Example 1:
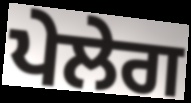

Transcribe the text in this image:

ਪੇਲੇਗ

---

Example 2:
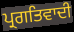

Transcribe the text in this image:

ਪ੍ਰਗਤਿਵਾਦੀ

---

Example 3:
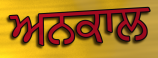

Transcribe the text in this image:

ਅਨਕਾਲ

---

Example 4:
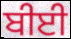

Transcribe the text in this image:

ਬੀਈ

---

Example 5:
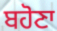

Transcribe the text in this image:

ਬਹੋਣਾ